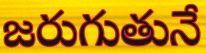
జరుగుతునే